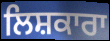
ਲਿਸ਼ਕਾਰਾ